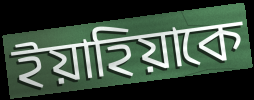
ইয়াহিয়াকে